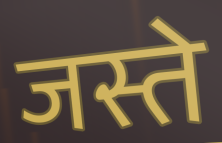
जस्ते